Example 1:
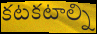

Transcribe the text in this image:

కటకటాల్ని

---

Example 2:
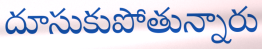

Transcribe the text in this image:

దూసుకుపోతున్నారు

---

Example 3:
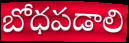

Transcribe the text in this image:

బోధపడాలి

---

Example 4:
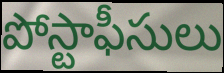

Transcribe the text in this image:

పోస్టాఫీసులు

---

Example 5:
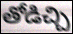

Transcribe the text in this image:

తోడిచ్చి